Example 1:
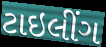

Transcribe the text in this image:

ટાઇલીંગ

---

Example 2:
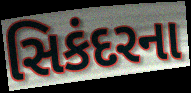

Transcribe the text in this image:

સિકંદરના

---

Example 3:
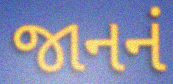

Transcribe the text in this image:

જાનનં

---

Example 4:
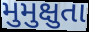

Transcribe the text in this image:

મુમુક્ષુતા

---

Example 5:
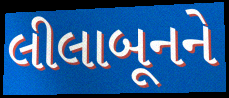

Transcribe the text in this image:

લીલાબૂનને